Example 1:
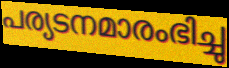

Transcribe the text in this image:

പര്യടനമാരംഭിച്ചു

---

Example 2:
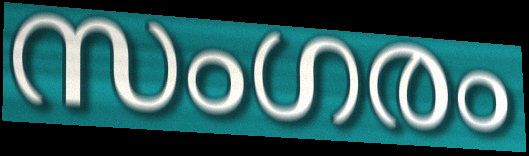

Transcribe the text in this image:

സംഗരം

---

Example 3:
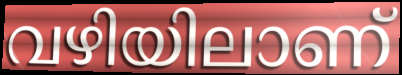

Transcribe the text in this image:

വഴിയിലാണ്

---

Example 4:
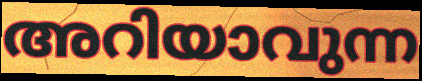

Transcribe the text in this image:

അറിയാവുന്ന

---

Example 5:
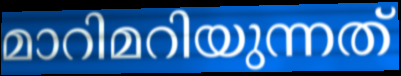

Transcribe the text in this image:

മാറിമറിയുന്നത്